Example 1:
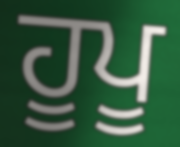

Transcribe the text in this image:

ਹੂਪੂ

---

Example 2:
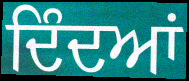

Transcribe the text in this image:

ਦਿੰਦਆਂ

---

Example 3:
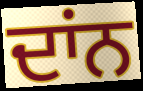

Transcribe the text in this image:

ਦਾਂਨ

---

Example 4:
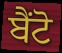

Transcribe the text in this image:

ਬੈਂਟੋ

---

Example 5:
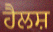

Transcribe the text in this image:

ਹੈਲਸ਼